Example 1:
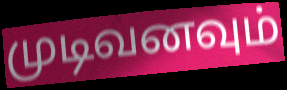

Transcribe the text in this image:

முடிவனவும்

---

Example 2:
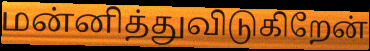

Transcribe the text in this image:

மன்னித்துவிடுகிறேன்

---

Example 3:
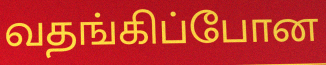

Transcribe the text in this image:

வதங்கிப்போன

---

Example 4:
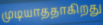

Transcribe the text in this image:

முடியாததாகிறது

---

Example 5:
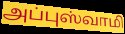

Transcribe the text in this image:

அப்புஸ்வாமி